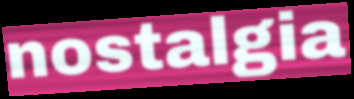
nostalgia